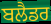
ਬਲੈਡਰ